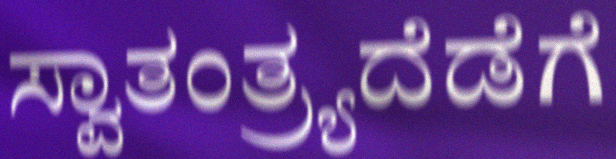
ಸ್ವಾತಂತ್ರ್ಯದೆಡೆಗೆ